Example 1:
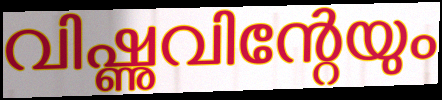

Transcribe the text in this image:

വിഷ്ണുവിന്റേയും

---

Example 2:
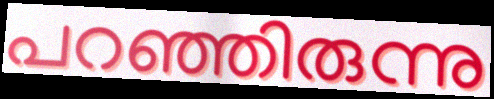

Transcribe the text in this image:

പറഞ്ഞിരുന്നു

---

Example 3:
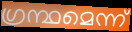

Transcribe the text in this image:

ഗ്രന്ഥമെന്ന്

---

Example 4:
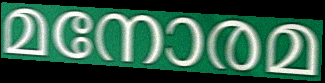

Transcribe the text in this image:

മനോരമ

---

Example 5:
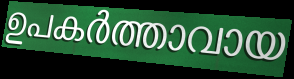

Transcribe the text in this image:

ഉപകർത്താവായ